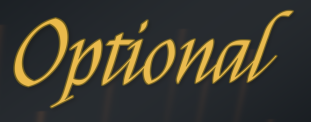
Optional